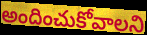
అందించుకోవాలని